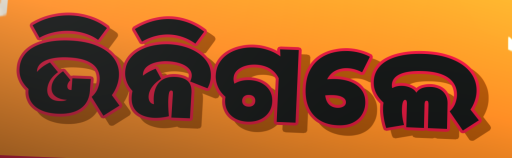
ଭିଜିଗଲେ